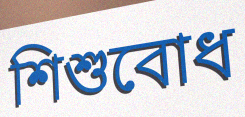
শিশুবোধ